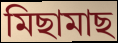
মিছামাছ